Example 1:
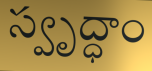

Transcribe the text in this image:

స్వృద్ధాం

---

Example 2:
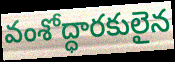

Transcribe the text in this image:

వంశోద్ధారకులైన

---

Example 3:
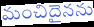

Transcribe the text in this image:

మంచిదైనను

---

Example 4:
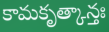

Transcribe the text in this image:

కామకృత్కాన్తః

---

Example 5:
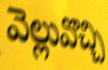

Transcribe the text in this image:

వెల్లువొచ్చి